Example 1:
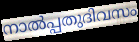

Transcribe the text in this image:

നാൽപ്പതുദിവസം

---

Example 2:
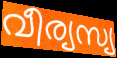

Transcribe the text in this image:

വീര്യസ്യ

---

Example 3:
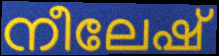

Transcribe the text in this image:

നീലേഷ്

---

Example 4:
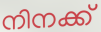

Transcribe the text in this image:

നിനക്ക്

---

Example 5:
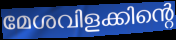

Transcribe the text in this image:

മേശവിളക്കിന്റെ